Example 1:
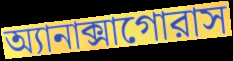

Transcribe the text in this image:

অ্যানাক্সাগোরাস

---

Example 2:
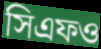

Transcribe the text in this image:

সিএফও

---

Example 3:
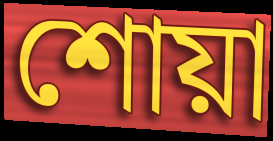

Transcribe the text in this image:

শোয়া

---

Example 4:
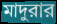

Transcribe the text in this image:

মাদুরার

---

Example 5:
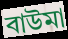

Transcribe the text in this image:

বাউমা